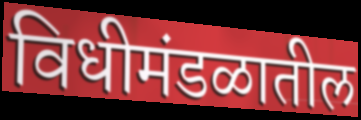
विधीमंडळातील